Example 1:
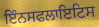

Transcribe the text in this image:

ਇੰਨਸਫਲਾਇਟਿਸ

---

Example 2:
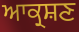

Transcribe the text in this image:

ਆਕ੍ਰਸ਼ਣ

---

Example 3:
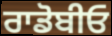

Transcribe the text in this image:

ਰਾਡੋਬੀਓ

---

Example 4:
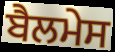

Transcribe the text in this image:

ਬੈਲਮੇਸ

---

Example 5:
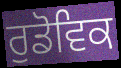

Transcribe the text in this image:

ਰੁਡੋਵਿਕ